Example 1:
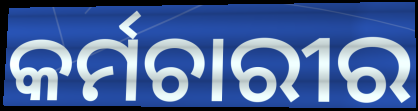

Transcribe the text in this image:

କର୍ମଚାରୀର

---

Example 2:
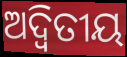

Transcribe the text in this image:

ଅଦ୍ଵିତୀୟ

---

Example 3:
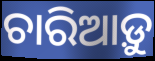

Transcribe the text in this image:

ଚାରିଆଡ଼ୁ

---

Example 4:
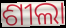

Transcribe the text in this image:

ଶୀଲା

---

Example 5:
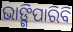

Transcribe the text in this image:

ଭାଙ୍ଗିପାରିବି